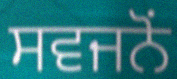
ਸਵਜਨੋਂ